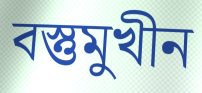
বস্তুমুখীন